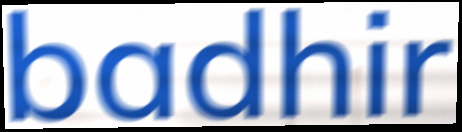
badhir